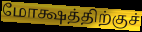
மோக்ஷத்திற்குச்